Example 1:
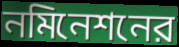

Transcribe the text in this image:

নমিনেশনের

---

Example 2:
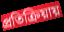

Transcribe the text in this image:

প্রতিক্রিয়ায়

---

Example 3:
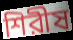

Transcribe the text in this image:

শিরীষ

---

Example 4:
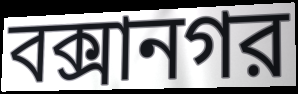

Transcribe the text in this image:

বক্সানগর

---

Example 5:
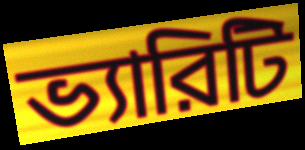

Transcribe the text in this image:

ভ্যারিটি